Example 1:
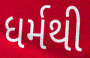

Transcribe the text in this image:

ધર્મથી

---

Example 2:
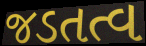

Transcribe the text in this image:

જડતત્વ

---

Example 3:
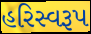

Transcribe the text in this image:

હરિસ્વરૂપ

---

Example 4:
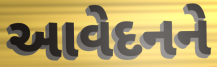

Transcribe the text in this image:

આવેદનને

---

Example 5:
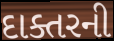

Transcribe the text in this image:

દાક્તરની